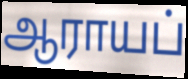
ஆராயப்